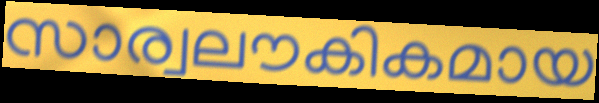
സാര്വലൗകികമായ